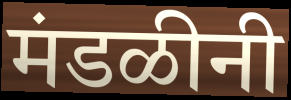
मंडळीनी